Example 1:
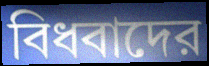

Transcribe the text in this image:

বিধবাদের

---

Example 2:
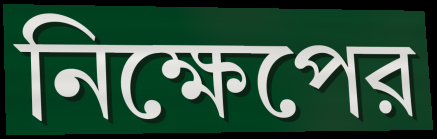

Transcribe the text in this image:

নিক্ষেপের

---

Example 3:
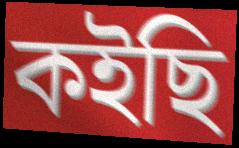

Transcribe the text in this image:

কইছি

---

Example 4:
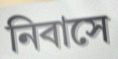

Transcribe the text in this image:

নিবাসে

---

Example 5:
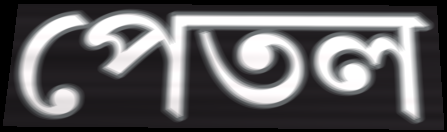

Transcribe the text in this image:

পেতল